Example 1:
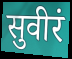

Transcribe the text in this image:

सुवीरं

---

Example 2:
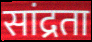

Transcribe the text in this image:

सांद्रता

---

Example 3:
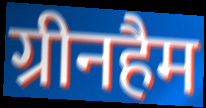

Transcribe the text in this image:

ग्रीनहैम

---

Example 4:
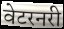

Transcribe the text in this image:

वेटरनरी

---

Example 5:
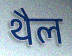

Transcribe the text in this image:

थैल